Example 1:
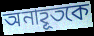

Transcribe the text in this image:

অনাহূতকে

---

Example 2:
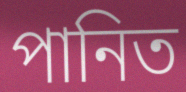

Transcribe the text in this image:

পানিত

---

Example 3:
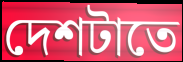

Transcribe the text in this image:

দেশটাতে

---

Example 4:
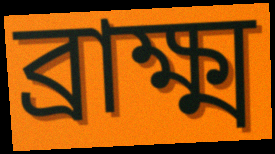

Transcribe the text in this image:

ব্রাক্ষ্ম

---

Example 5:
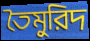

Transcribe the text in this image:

তৈমুরিদ